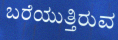
ಬರೆಯುತ್ತಿರುವ